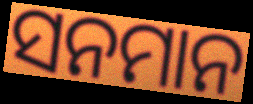
ସନମାନ